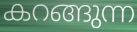
കറങ്ങുന്ന